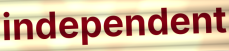
independent